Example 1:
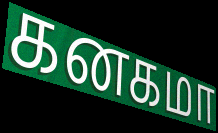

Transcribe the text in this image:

கனகமா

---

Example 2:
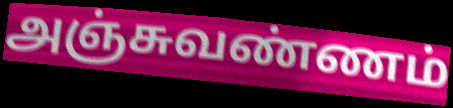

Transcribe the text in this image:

அஞ்சுவண்ணம்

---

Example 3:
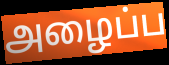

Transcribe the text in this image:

அழைப்ப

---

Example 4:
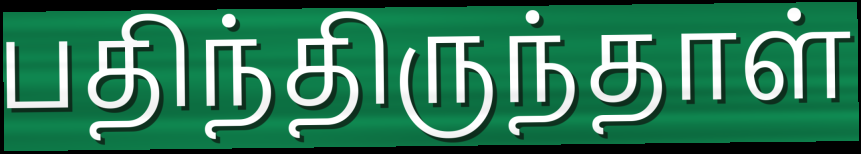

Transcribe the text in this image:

பதிந்திருந்தாள்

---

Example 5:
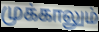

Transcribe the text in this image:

முக்காலும்